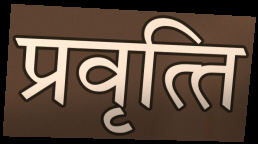
प्रवृत्‍ति